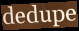
dedupe